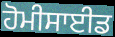
ਹੋਮੀਸਾਈਡ